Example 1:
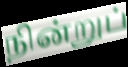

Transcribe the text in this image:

நின்றுப்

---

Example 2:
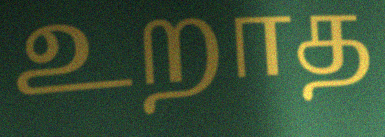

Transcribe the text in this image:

உறாத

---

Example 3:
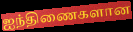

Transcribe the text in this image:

ஐந்திணைகளான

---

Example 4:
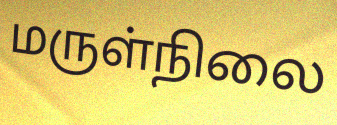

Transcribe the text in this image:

மருள்நிலை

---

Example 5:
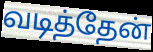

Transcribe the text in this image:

வடித்தேன்